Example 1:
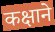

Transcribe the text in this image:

कक्षाने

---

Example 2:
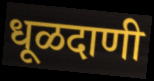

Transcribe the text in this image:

धूळदाणी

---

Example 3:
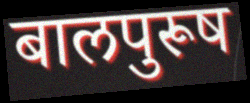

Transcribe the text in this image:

बालपुरूष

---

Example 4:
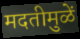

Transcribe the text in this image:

मदतीमुळें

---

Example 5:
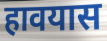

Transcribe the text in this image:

हावयास